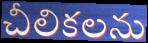
చీలికలను